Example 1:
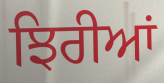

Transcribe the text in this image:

ਝਿਰੀਆਂ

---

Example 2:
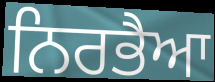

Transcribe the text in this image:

ਨਿਰਭੈਆ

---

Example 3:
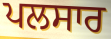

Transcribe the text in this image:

ਪਲਸਾਰ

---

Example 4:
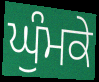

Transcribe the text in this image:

ਘੁੰਮਕੇ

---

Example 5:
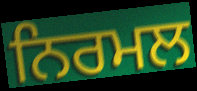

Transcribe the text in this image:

ਨਿਰਮਲ